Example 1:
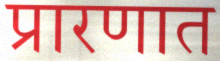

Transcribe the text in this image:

प्रारणात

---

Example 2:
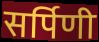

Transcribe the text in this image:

सर्पिणी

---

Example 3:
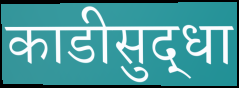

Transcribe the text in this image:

काडीसुद्धा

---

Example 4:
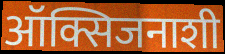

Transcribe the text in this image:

ऑक्सिजनाशी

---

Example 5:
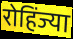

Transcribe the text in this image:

रोहिंज्या